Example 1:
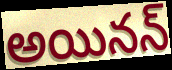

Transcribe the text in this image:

అయినన్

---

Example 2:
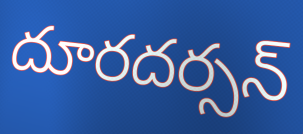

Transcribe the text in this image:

దూరదర్సన్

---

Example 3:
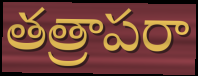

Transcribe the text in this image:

తత్రాపరా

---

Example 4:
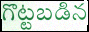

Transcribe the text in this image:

గొట్టబడిన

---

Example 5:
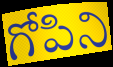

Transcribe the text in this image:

గోపిని